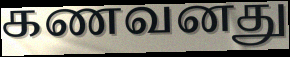
கணவனது